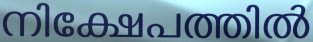
നിക്ഷേപത്തിൽ